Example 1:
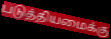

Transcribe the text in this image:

படுத்தியமைக்கு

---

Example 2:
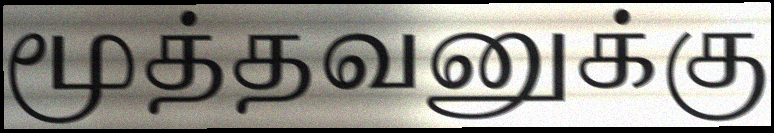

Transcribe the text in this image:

மூத்தவனுக்கு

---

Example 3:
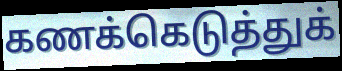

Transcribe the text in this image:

கணக்கெடுத்துக்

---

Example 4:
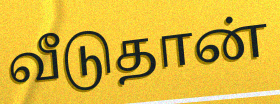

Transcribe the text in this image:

வீடுதான்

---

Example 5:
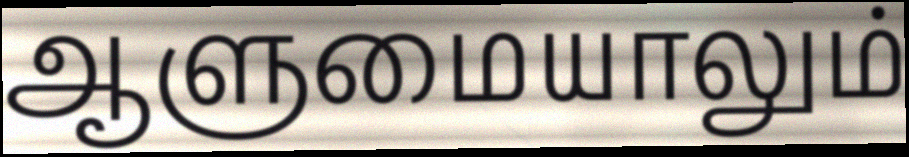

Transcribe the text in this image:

ஆளுமையாலும்